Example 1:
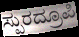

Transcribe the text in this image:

ಸ್ಪುರದ್ರೂಪಿ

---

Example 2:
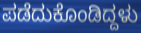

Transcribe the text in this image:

ಪಡೆದುಕೊಂಡಿದ್ದಳು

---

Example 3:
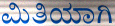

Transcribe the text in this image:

ಮಿತಿಯಾಗಿ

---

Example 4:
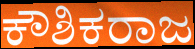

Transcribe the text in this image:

ಕೌಶಿಕರಾಜ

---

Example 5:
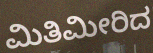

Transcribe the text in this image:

ಮಿತಿಮೀರಿದ